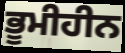
ਭੂਮੀਹੀਨ